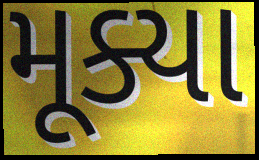
મૂક્યા